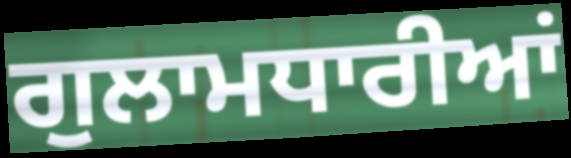
ਗੁਲਾਮਧਾਰੀਆਂ